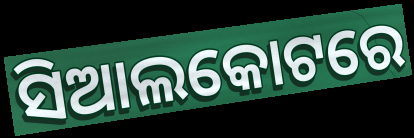
ସିଆଲକୋଟରେ